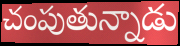
చంపుతున్నాడు